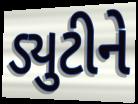
ડ્યુટીને